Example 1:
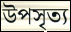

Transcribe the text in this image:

উপসৃত্য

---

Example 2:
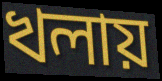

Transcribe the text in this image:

খলায়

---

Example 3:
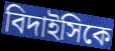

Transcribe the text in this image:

বিদাইসিকে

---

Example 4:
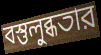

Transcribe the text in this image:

বস্তুলুব্ধতার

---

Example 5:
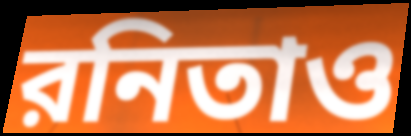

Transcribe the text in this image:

রনিতাও